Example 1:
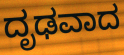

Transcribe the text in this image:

ದೃಢವಾದ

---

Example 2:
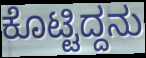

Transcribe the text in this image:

ಕೊಟ್ಟಿದ್ದನು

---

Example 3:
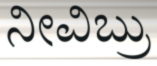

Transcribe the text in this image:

ನೀವಿಬ್ರು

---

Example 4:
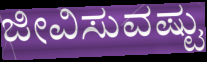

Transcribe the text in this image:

ಜೀವಿಸುವಷ್ಟು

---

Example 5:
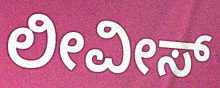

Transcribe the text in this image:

ಲೀವೀಸ್